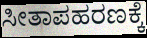
ಸೀತಾಪಹರಣಕ್ಕೆ